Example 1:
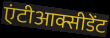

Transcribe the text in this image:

एंटीआक्सीडेंट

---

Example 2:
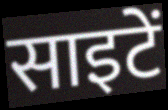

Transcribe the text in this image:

साइटें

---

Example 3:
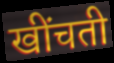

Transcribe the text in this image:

खींचती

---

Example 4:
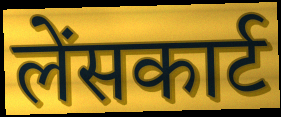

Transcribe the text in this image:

लेंसकार्ट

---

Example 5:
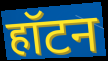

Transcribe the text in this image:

हॉटन